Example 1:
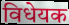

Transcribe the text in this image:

विधेयक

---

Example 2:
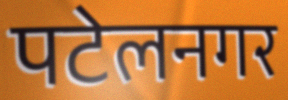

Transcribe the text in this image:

पटेलनगर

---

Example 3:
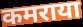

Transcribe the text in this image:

कमराया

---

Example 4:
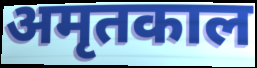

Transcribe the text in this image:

अमृतकाल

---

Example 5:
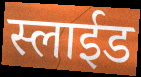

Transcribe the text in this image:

स्लाईड